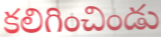
కలిగించిండు